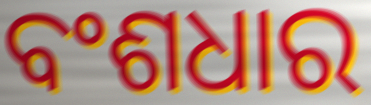
ବଂଶଧାର